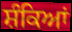
ਸ਼ੰਕਿਆਂ